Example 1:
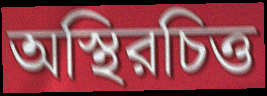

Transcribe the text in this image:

অস্থিরচিত্ত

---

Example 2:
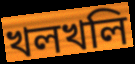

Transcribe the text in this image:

খলখলি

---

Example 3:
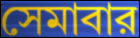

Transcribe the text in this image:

সেমাবার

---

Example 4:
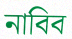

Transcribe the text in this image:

নাবিব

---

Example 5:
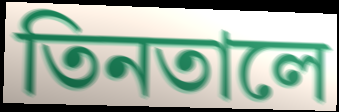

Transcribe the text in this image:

তিনতালে